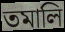
তমালি